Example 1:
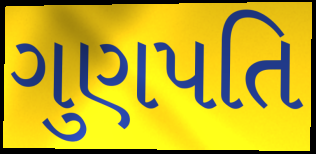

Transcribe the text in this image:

ગુણપતિ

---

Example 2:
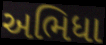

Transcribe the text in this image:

અભિધા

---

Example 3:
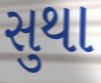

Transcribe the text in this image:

સુથા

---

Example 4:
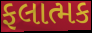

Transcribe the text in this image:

ફલાત્મક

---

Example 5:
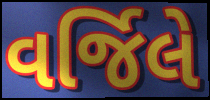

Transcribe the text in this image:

વર્જિલે